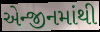
એન્જીનમાંથી